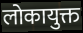
लोकायुक्त